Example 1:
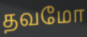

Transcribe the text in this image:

தவமோ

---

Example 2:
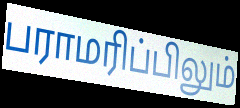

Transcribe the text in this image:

பராமரிப்பிலும்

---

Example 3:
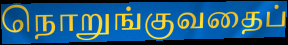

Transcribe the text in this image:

நொறுங்குவதைப்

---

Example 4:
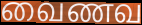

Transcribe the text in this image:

வைணவ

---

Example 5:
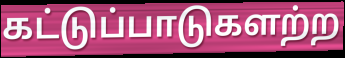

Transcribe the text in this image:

கட்டுப்பாடுகளற்ற